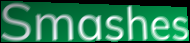
Smashes